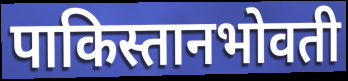
पाकिस्तानभोवती